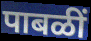
पाबळीं